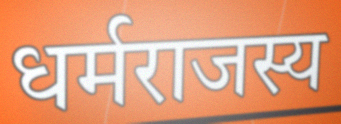
धर्मराजस्य